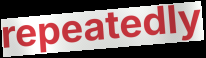
repeatedly